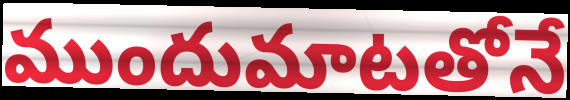
ముందుమాటతోనే